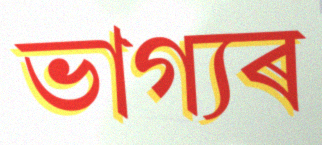
ভাগ্যৰ